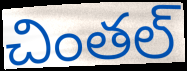
చింతల్